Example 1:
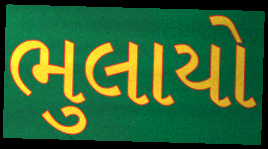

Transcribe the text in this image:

ભુલાયો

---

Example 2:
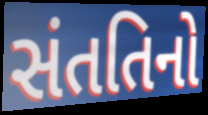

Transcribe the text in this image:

સંતતિનો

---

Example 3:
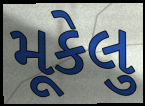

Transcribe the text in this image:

મૂકેલુ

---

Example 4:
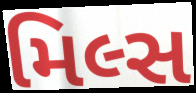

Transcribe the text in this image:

મિલ્સ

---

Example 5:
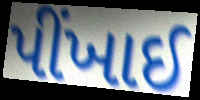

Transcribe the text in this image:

પીંખાઈ